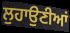
ਲੁਹਾਉਣੀਆਂ